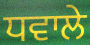
ਧਵਾਲੇ